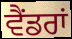
ਵੈਂਡਰਾਂ